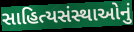
સાહિત્યસંસ્થાઓનું